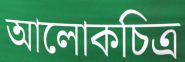
আলোকচিত্ৰ